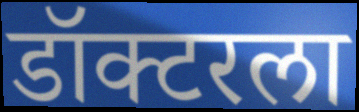
डॉक्टरला